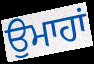
ਉਮਾਹਾਂ